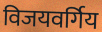
विजयवर्गिय